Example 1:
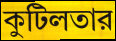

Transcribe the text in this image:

কুটিলতার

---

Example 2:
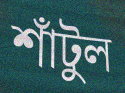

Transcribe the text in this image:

শাঁটুল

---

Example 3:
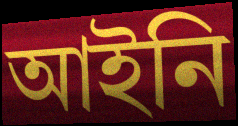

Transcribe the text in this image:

আইনি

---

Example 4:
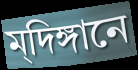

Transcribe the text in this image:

ম্‌দিঙ্গানে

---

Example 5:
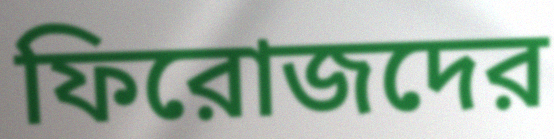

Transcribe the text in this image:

ফিরোজদের